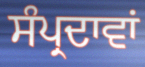
ਸੰਪ੍ਰਦਾਵਾਂ